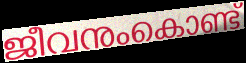
ജീവനുംകൊണ്ട്